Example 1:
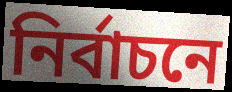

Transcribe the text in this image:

নির্বাচনে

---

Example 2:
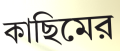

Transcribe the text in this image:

কাছিমের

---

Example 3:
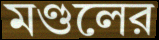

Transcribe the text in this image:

মণ্ডলের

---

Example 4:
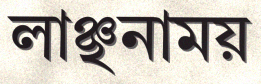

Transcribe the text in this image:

লাঞ্ছনাময়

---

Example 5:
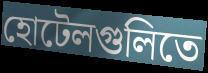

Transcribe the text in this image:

হোটেলগুলিতে